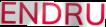
ENDRU